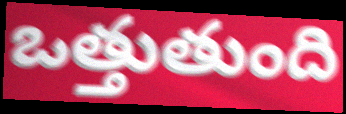
ఒత్తుతుంది